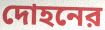
দোহনের